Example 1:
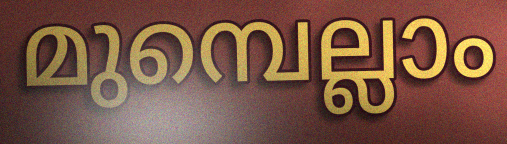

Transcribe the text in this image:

മുമ്പെല്ലാം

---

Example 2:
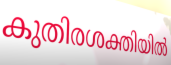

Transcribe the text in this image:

കുതിരശക്തിയിൽ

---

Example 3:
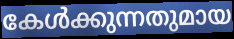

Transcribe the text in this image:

കേൾക്കുന്നതുമായ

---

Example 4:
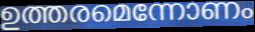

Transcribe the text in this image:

ഉത്തരമെന്നോണം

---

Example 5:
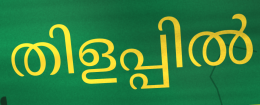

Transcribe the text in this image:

തിളപ്പിൽ